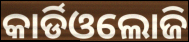
କାର୍ଡିଓଲୋଜି